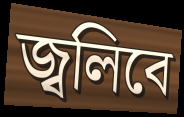
জ্বলিবে